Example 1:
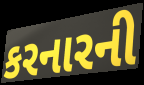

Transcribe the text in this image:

કરનારની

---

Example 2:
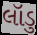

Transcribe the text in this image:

લૉડુ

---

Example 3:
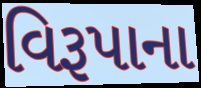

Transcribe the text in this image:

વિરૂપાના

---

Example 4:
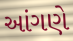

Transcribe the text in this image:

આંગણે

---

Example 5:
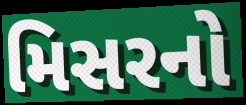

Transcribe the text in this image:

મિસરનો